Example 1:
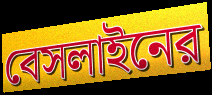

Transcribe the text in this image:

বেসলাইনের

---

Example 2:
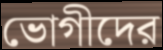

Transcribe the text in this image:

ভোগীদের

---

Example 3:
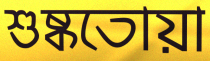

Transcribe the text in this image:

শুষ্কতোয়া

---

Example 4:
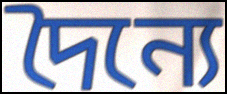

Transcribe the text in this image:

দৈন্যে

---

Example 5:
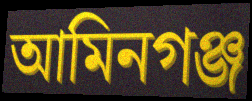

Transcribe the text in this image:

আমিনগঞ্জ